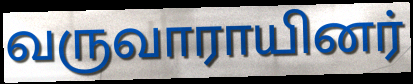
வருவாராயினர்